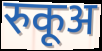
रुकूअ